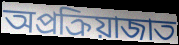
অপ্রক্রিয়াজাত